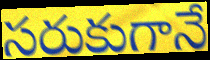
సరుకుగానే